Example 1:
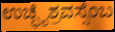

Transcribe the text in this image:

ಉಚ್ಛೈಶ್ರವಸ್ಸೆಂಬ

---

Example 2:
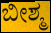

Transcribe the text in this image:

ಬೀಶ್ಮ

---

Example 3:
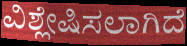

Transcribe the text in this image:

ವಿಶ್ಲೇಷಿಸಲಾಗಿದೆ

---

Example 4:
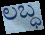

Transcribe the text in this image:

ಲಬ್ಧ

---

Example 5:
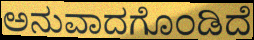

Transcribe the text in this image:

ಅನುವಾದಗೊಂಡಿದೆ